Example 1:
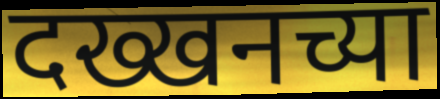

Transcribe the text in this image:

दख्खनच्या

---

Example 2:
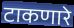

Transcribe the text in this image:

टाकणारे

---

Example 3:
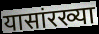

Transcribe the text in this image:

यासांरख्या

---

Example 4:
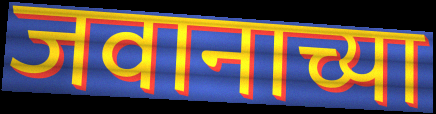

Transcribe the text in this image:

जवानाच्या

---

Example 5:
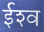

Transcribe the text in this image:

ईश्व